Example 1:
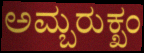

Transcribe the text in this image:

ಅಮ್ಬರುಕ್ಖಂ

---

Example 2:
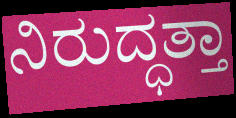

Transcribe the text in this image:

ನಿರುದ್ಧತ್ತಾ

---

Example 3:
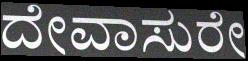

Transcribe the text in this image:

ದೇವಾಸುರೇ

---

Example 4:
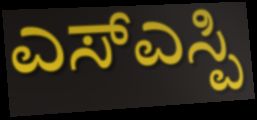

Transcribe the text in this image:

ಎಸ್ಎಸ್ಪಿ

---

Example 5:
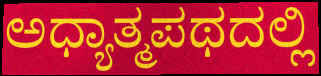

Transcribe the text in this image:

ಅಧ್ಯಾತ್ಮಪಥದಲ್ಲಿ